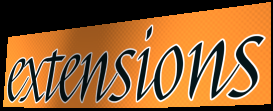
extensions